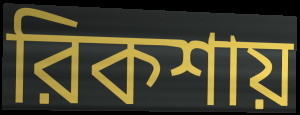
রিকশায়